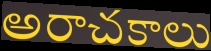
అరాచకాలు